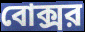
বোক্সর